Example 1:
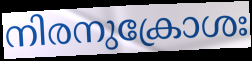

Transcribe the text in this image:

നിരനുക്രോശഃ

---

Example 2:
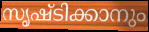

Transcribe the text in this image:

സൃഷ്ടിക്കാനും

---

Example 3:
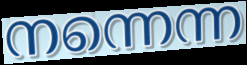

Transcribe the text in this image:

നന്നെന്ന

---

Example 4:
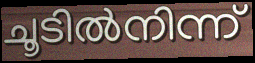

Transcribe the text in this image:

ചൂടിൽനിന്ന്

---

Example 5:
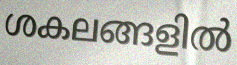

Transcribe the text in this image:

ശകലങ്ങളിൽ